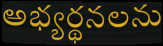
అభ్యర్థనలను